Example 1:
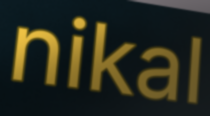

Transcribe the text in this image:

nikal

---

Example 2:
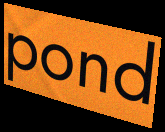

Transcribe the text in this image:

pond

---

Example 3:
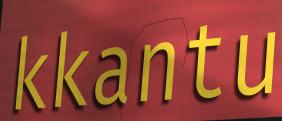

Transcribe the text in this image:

kkantu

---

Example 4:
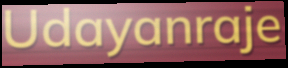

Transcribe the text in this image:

Udayanraje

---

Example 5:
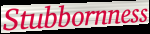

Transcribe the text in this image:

Stubbornness